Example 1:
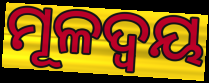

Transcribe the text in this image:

ମୂଳଦ୍ଵୟ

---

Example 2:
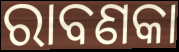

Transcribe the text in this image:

ରାବଣକା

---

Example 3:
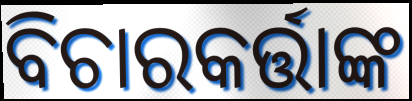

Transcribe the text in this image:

ବିଚାରକର୍ତ୍ତାଙ୍କ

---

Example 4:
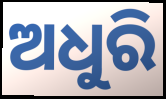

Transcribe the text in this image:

ଅଧୁରି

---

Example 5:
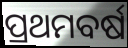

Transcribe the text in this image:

ପ୍ରଥମବର୍ଷ